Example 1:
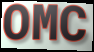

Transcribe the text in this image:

OMC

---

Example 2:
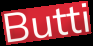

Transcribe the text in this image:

Butti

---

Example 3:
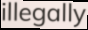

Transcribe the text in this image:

illegally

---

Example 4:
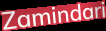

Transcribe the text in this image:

Zamindari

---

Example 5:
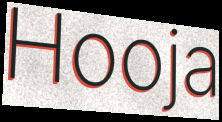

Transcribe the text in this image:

Hooja